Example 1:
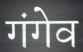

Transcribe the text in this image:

गंगेव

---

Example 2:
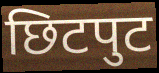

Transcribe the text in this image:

छिटपुट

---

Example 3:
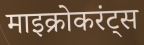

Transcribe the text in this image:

माइक्रोकरंट्स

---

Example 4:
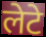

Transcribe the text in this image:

लेटे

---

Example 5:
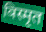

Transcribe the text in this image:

विस्मृत